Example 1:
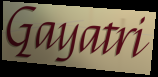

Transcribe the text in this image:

Gayatri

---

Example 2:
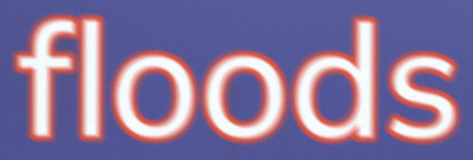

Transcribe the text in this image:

floods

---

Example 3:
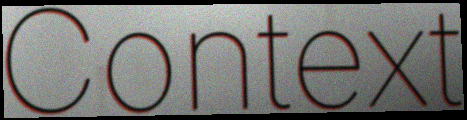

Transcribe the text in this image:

Context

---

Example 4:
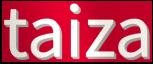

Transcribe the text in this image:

taiza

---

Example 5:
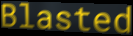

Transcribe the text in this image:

Blasted